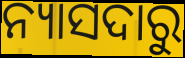
ନ୍ୟାସଦାରୁ